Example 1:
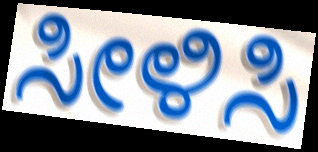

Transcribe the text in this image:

ಸೀಳಿಸಿ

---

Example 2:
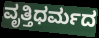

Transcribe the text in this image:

ವೃತ್ತಿಧರ್ಮದ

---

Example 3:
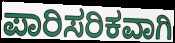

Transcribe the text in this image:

ಪಾರಿಸರಿಕವಾಗಿ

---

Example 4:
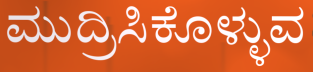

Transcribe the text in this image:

ಮುದ್ರಿಸಿಕೊಳ್ಳುವ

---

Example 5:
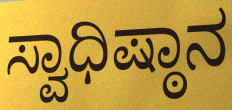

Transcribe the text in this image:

ಸ್ವಾಧಿಷ್ಠಾನ